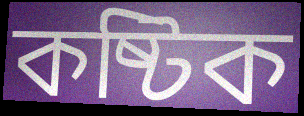
কষ্টিক